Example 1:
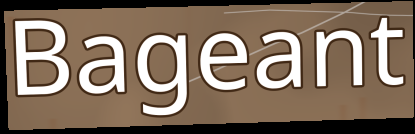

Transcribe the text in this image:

Bageant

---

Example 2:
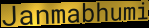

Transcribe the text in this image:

Janmabhumi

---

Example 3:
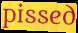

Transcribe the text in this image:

pissed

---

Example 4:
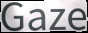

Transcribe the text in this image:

Gaze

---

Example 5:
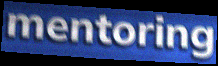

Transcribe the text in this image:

mentoring